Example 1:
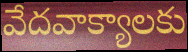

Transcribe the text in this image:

వేదవాక్యాలకు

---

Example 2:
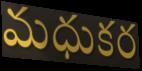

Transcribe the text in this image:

మధుకర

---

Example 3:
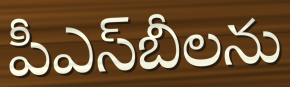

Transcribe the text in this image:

పీఎస్‌బీలను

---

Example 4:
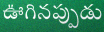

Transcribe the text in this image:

ఊగినప్పుడు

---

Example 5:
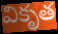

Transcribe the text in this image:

వికృత